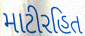
માટીરહિત